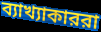
ব্যাখ্যাকাররা